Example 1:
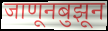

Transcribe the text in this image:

जाणूनबुझून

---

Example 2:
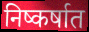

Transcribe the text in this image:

निष्कर्षात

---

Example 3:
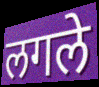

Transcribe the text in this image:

लगले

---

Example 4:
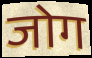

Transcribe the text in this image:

जोग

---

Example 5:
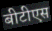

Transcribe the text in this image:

बीटीएस